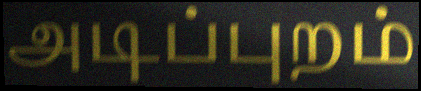
அடிப்புறம்